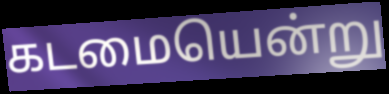
கடமையென்று